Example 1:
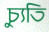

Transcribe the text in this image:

চ্যুতি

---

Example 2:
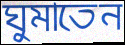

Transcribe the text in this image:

ঘুমাতেন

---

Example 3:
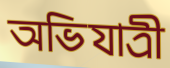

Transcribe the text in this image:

অভিযাত্রী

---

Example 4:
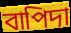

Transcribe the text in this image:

বাপিদা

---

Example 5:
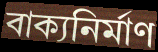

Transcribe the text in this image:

বাক্যনির্মাণ